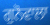
ਗੁਨੋਵਾਲਾ